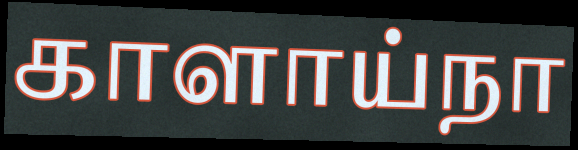
காளாய்நா